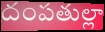
దంపతుల్లా